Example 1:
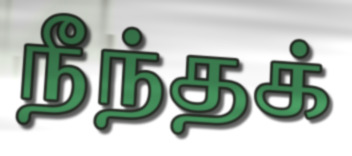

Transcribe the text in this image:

நீந்தக்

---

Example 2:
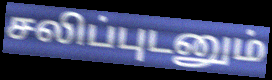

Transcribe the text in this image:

சலிப்புடனும்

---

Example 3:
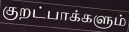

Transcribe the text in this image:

குறட்பாக்களும்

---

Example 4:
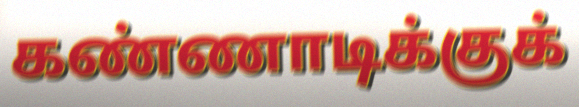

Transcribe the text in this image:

கண்ணாடிக்குக்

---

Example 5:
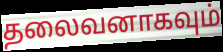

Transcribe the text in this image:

தலைவனாகவும்